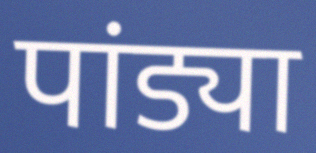
पांड्या